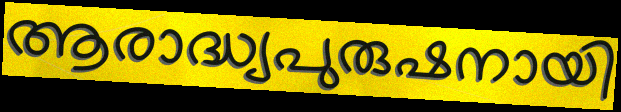
ആരാദ്ധ്യപുരുഷനായി